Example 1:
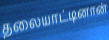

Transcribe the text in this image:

தலையாட்டினான்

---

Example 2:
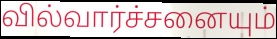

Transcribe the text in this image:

வில்வார்ச்சனையும்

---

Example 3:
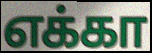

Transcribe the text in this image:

எக்கா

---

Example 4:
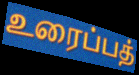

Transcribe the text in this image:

உரைப்பத்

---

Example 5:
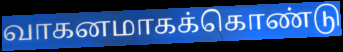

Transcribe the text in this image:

வாகனமாகக்கொண்டு